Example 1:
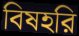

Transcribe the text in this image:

বিষহরি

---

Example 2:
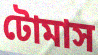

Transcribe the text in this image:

টোমাস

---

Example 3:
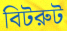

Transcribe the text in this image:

বিটরুট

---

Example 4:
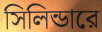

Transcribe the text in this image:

সিলিন্ডারে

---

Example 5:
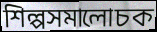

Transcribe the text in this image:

শিল্পসমালোচক